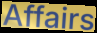
Affairs